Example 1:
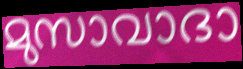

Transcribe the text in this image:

മുസാവാദാ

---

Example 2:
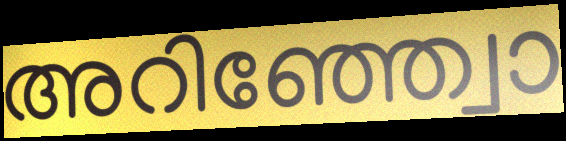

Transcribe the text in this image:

അറിഞ്ഞ്വോ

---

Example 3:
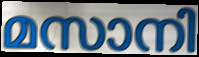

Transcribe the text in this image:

മസാനി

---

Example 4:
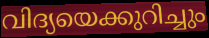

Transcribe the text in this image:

വിദ്യയെക്കുറിച്ചും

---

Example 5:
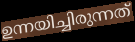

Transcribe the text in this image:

ഉന്നയിച്ചിരുന്നത്